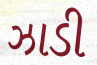
ઝાડી